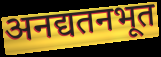
अनद्यतनभूत